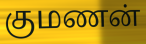
குமணன்